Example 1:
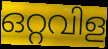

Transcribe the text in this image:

ഒറ്റവിള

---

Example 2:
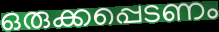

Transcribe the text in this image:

ഒരുക്കപ്പെടണം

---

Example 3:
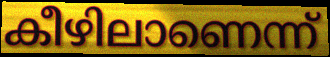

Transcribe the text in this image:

കീഴിലാണെന്ന്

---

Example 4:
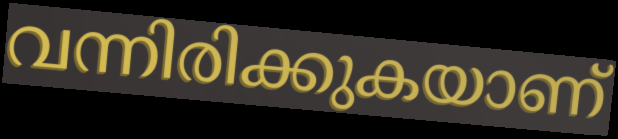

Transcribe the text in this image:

വന്നിരിക്കുകയാണ്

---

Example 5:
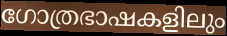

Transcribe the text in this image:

ഗോത്രഭാഷകളിലും